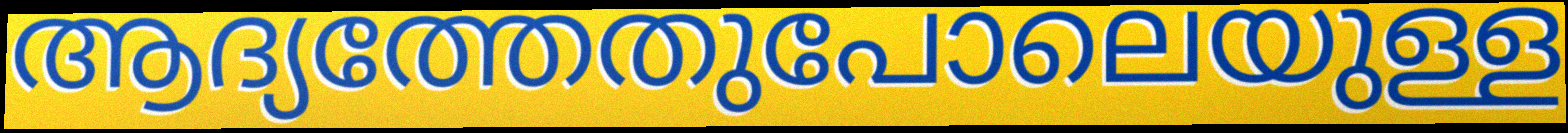
ആദ്യത്തേതുപോലെയുള്ള